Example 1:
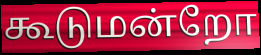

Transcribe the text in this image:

கூடுமன்றோ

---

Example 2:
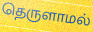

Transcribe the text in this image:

தெருளாமல்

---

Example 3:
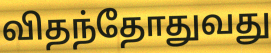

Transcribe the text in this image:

விதந்தோதுவது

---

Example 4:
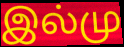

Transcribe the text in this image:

இல்மு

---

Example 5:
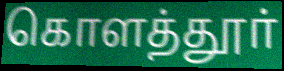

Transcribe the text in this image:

கொளத்தூர்